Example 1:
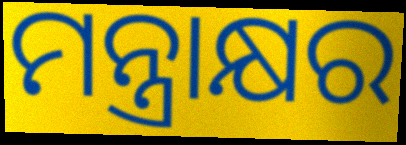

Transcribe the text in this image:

ମନ୍ତ୍ରାକ୍ଷର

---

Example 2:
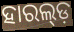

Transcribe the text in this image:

ହାରଲ୍ଡ଼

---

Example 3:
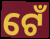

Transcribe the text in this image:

ଟେଁ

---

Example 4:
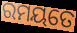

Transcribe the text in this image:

ରମୟତେ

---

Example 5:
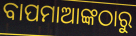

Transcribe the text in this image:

ବାପମାଆଙ୍କଠାରୁ